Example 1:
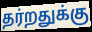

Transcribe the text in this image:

தர்றதுக்கு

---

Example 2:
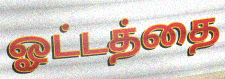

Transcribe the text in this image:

ஓட்டத்தை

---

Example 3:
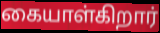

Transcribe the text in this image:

கையாள்கிறார்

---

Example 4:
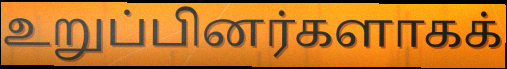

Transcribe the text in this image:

உறுப்பினர்களாகக்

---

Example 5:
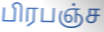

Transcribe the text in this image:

பிரபஞ்ச